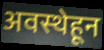
अवस्थेहून